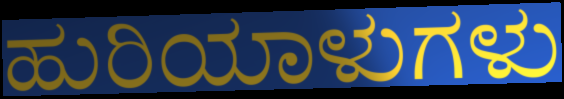
ಹುರಿಯಾಳುಗಳು